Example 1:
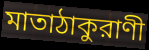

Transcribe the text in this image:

মাতাঠাকুরাণী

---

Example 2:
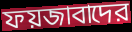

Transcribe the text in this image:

ফয়জাবাদের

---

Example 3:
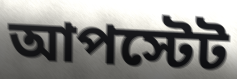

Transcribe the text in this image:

আপস্টেট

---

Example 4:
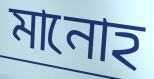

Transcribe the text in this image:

মানোহ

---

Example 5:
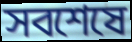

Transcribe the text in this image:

সবশেষে